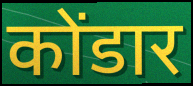
कोंडार